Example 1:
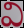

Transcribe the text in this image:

వి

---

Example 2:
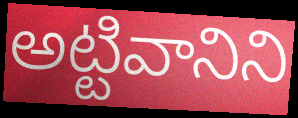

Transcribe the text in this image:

అట్టివానిని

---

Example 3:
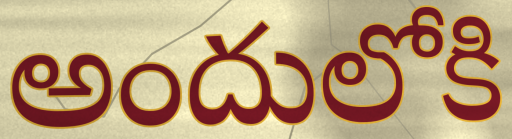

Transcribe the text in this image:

అందులోకి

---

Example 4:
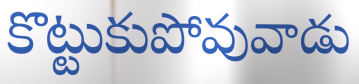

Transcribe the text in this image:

కొట్టుకుపోవువాడు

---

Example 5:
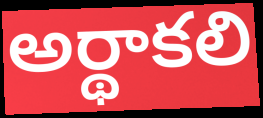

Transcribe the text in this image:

అర్థాకలి